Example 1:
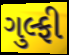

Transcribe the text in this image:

ગુલ્ફી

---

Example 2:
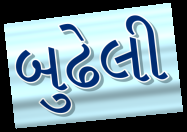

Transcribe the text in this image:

બુઢેલી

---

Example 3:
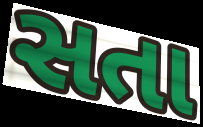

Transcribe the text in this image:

સતા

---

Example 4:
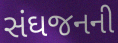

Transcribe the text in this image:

સંઘજનની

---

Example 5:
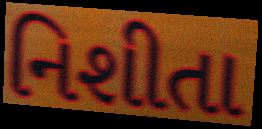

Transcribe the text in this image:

નિશીતા